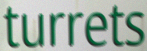
turrets